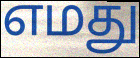
எமது